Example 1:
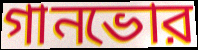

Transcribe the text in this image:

গানভোর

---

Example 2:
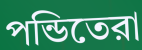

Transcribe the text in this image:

পন্ডিতেরা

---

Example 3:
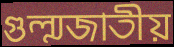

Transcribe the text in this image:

গুল্মজাতীয়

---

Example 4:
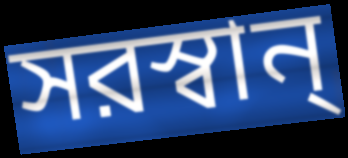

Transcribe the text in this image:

সরস্বান্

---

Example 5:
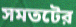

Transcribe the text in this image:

সমতটের